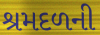
શ્રમદળની